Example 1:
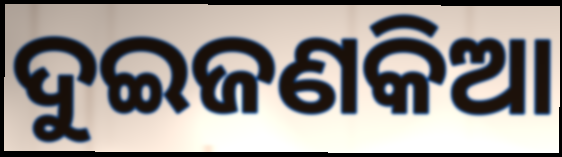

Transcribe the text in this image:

ଦୁଇଜଣକିଆ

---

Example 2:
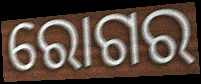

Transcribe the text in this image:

ରୋଗର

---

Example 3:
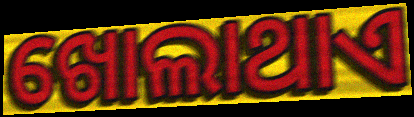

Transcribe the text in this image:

ଖୋଲାଥାଏ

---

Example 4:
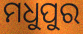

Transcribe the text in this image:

ମଧୁପୁର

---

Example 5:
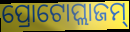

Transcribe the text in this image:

ପ୍ରୋଟୋପ୍ଲାଜମ୍